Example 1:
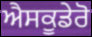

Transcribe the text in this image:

ਐਸਕੂਡੇਰੋ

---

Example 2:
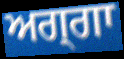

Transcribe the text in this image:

ਅਗ੍ਗਾ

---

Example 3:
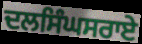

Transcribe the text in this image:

ਦਲਸਿੰਘਸਰਾਏ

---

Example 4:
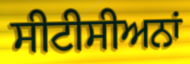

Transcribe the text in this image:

ਸੀਟੀਸੀਅਨਾਂ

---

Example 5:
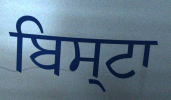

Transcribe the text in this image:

ਬਿਸ੍ਟਾ